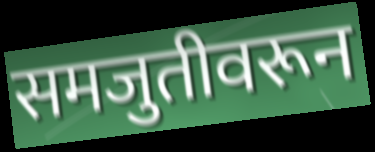
समजुतीवरून